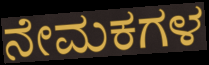
ನೇಮಕಗಳ